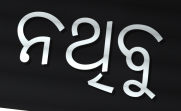
ନଥିବୁ